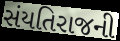
સંયતિરાજની